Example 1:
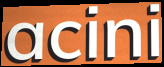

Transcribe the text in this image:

acini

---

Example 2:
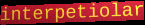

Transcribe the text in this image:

interpetiolar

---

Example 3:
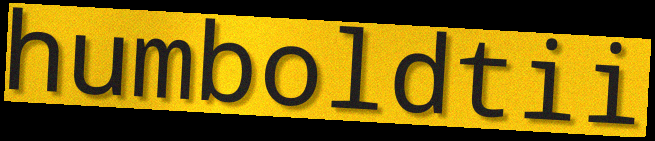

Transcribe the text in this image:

humboldtii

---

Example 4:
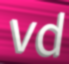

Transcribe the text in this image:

vd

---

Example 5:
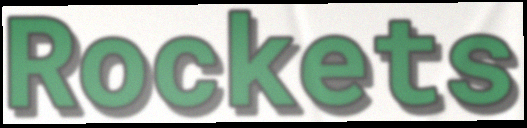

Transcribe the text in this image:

Rockets